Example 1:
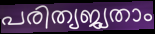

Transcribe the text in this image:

പരിത്യജ്യതാം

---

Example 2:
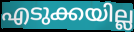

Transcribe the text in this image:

എടുക്കയില്ല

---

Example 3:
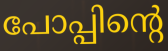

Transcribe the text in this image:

പോപ്പിന്റെ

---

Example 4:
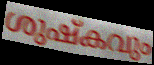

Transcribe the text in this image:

ശുഷ്കവും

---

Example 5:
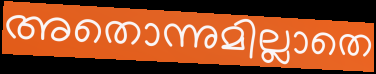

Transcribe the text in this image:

അതൊന്നുമില്ലാതെ